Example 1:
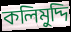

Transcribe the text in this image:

কলিমুদ্দি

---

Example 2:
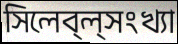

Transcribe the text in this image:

সিলেব্‌ল্‌সংখ্যা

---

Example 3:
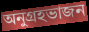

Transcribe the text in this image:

অনুগ্রহভাজন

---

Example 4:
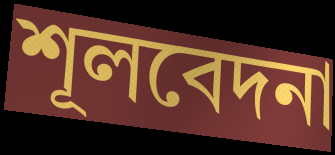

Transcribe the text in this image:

শূলবেদনা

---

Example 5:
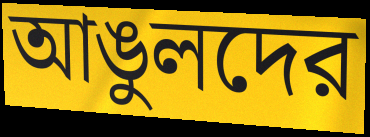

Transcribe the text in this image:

আঙুলদের